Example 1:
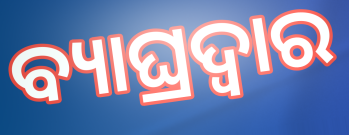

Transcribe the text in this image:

ବ୍ୟାଘ୍ରଦ୍ଵାର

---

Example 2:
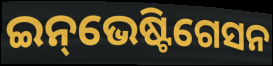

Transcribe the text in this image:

ଇନ୍‌ଭେଷ୍ଟିଗେସନ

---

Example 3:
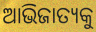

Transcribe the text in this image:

ଆଭିଜାତ୍ୟକୁ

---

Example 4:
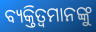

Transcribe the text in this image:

ବ୍ୟକ୍ତିତ୍ବମାନଙ୍କୁ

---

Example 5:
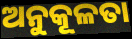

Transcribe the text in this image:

ଅନୁକୂଳତା